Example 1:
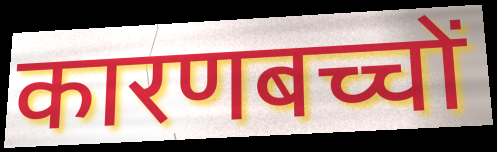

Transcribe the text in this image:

कारणबच्चों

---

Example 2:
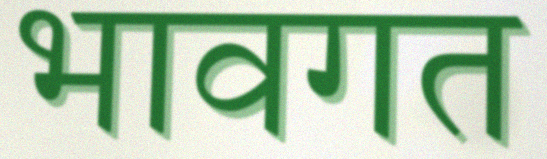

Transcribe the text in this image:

भावगत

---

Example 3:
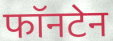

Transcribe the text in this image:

फॉनटेन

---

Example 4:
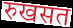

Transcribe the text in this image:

रुखसत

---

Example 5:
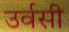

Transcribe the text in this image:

उर्वसी